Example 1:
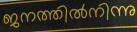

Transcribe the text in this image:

ജനത്തിൽനിന്നു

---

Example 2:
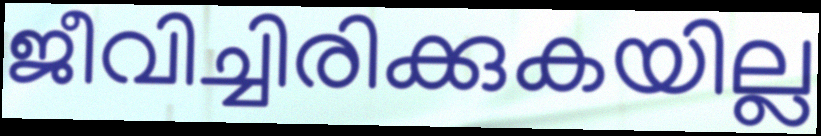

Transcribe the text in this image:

ജീവിച്ചിരിക്കുകയില്ല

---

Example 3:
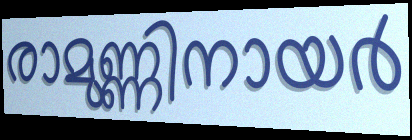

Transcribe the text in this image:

രാമുണ്ണിനായർ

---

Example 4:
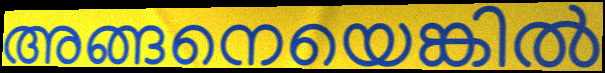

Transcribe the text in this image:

അങ്ങനെയെങ്കിൽ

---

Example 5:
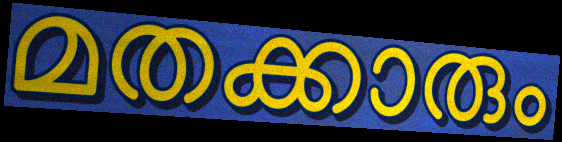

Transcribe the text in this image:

മതക്കാരും